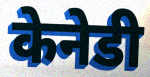
केनेडी